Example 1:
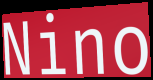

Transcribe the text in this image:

Nino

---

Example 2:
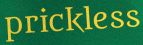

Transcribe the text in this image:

prickless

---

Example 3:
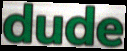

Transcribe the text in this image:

dude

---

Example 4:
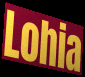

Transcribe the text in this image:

Lohia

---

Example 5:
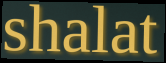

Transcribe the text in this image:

shalat